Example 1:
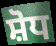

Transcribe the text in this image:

ਸ਼ੋਧ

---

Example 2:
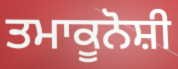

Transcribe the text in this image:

ਤਮਾਕੂਨੋਸ਼ੀ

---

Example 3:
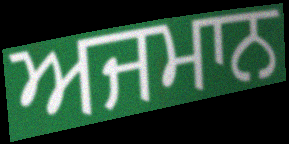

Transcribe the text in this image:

ਅਜਮਾਨ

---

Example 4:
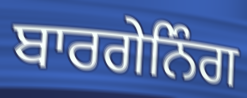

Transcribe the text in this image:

ਬਾਰਗੇਨਿੰਗ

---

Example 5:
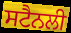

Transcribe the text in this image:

ਸਟੈਨਲੀ